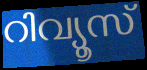
റിവ്യൂസ്